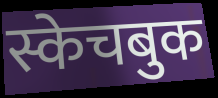
स्केचबुक